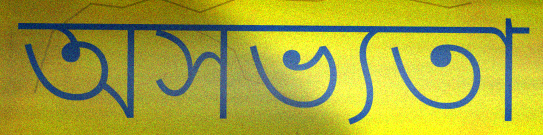
অসভ্যতা